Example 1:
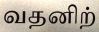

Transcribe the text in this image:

வதனிற்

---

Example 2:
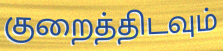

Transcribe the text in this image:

குறைத்திடவும்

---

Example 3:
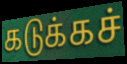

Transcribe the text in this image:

கடுக்கச்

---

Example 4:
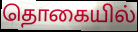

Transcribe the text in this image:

தொகையில்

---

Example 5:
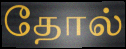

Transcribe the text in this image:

தோல்